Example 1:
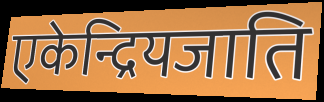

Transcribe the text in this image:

एकेन्द्रियजाति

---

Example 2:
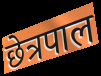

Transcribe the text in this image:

छेत्रपाल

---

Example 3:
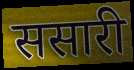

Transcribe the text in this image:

ससारी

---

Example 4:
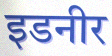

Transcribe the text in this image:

इडनीर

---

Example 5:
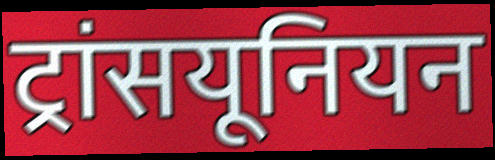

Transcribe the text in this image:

ट्रांसयूनियन